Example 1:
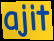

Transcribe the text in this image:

ajit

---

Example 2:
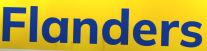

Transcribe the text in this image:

Flanders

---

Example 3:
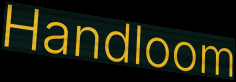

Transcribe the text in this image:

Handloom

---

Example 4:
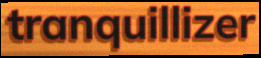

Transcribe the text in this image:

tranquillizer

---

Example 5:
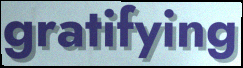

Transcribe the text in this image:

gratifying